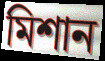
মিশান